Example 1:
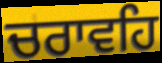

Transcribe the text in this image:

ਚਰਾਵਹਿ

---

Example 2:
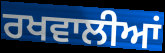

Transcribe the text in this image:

ਰਖਵਾਲੀਆਂ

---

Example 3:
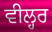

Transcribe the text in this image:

ਵੀਲ੍ਹਰ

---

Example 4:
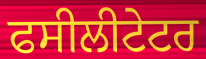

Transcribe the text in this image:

ਫਸੀਲੀਟੇਟਰ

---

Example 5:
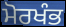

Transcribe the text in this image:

ਮੋਰਖੰਭ